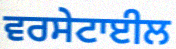
ਵਰਸੇਟਾਈਲ